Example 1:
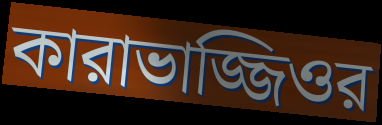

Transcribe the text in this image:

কারাভাজ্জিওর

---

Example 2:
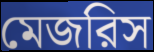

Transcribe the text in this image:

মেজরিস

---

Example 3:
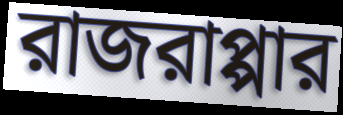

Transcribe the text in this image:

রাজরাপ্পার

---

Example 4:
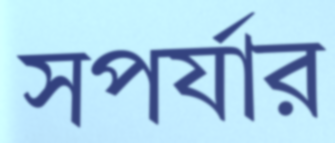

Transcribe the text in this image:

সপর্যার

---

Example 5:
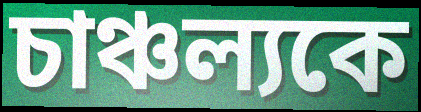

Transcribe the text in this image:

চাঞ্চল্যকে